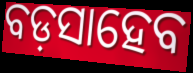
ବଡ଼ସାହେବ